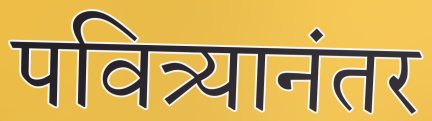
पवित्र्यानंतर